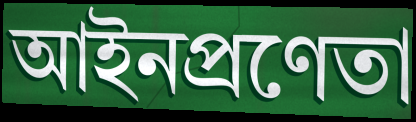
আইনপ্রণেতা